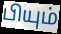
பியும்